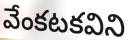
వేంకటకవిని